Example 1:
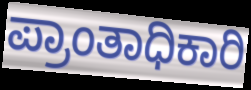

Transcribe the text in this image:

ಪ್ರಾಂತಾಧಿಕಾರಿ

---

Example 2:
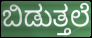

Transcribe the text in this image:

ಬಿಡುತ್ತಲೆ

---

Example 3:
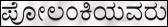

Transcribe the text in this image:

ಪೋಲಂಕಿಯವರು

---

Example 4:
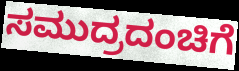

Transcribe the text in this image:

ಸಮುದ್ರದಂಚಿಗೆ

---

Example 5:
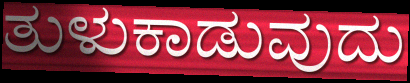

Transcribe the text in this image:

ತುಳುಕಾಡುವುದು